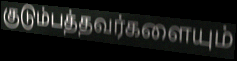
குடும்பத்தவர்களையும்